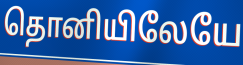
தொனியிலேயே